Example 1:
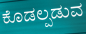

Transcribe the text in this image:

ಕೊಡಲ್ಪಡುವ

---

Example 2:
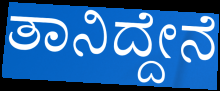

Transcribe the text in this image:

ತಾನಿದ್ದೇನೆ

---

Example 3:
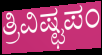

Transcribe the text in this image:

ತ್ರಿವಿಷ್ಟಪಂ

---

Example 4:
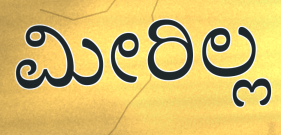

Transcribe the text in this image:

ಮೀರಿಲ್ಲ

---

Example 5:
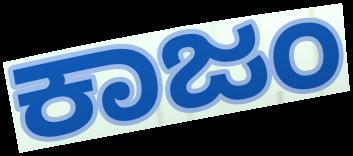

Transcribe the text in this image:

ಕಾಜಂ